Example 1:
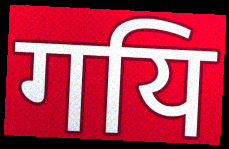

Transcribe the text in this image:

गयि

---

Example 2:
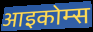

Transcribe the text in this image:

आइकोम्स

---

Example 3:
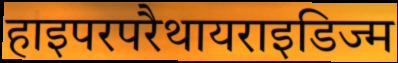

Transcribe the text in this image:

हाइपरपरैथायराइडिज्म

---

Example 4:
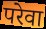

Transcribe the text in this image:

परेवा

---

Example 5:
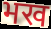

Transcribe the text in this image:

भख